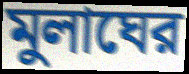
মুলাঘের